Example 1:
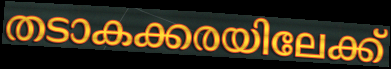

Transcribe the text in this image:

തടാകക്കരയിലേക്ക്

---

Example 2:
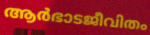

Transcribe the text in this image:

ആർഭാടജീവിതം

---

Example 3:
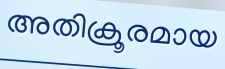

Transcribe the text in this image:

അതിക്രൂരമായ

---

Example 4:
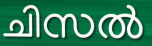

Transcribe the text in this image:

ചിസൽ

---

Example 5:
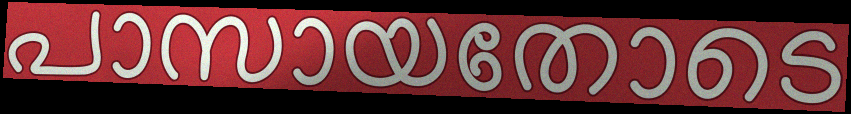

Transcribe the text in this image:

പാസായതോടെ